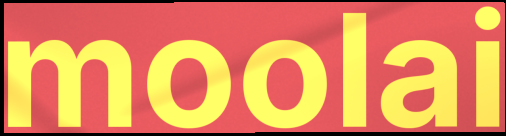
moolai